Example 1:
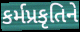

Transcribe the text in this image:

કર્મપ્રકૃતિને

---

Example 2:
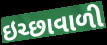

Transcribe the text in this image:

ઇચ્છાવાળી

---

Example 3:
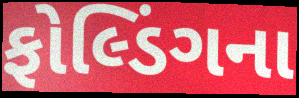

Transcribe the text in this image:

ફોલ્ડિંગના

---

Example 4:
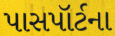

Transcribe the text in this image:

પાસપૉર્ટના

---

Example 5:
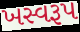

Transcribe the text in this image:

ખસ્વરૂપ